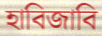
হাবিজাবি